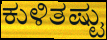
ಕುಳಿತಷ್ಟು